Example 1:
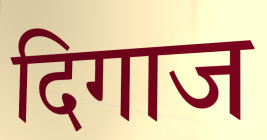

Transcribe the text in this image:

दिगाज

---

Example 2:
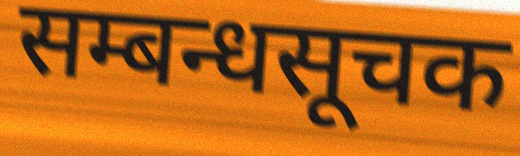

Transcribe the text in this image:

सम्बन्धसूचक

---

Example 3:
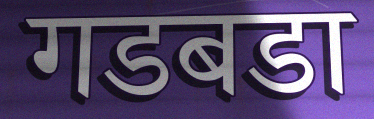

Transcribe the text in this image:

गडबडा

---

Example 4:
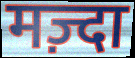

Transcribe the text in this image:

मज़्दा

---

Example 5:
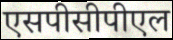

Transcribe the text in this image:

एसपीसीपीएल